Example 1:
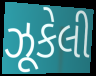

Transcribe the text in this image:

ઝૂકેલી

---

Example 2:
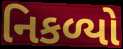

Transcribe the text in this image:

નિકળ્યો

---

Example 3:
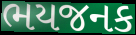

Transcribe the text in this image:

ભયજનક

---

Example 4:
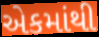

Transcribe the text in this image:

એકમાંથી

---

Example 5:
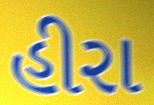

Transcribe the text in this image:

હીરા